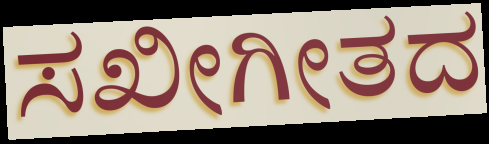
ಸಖೀಗೀತದ